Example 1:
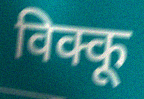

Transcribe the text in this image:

विक्कू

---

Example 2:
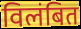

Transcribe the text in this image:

विलंबित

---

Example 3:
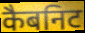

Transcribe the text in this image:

कैबनिट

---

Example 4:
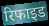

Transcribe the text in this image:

रिफाइड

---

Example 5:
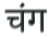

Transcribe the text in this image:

चंग